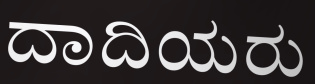
ದಾದಿಯರು